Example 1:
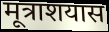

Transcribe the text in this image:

मूत्राशयास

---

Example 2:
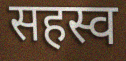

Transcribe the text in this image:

सहस्व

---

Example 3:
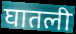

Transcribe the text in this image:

घातली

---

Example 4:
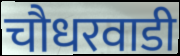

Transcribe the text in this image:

चौधरवाडी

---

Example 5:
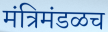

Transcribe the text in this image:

मंत्रिमंडळच